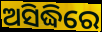
ଅସିଦ୍ଧିରେ